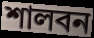
শালবন